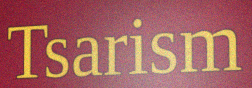
Tsarism